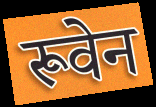
रूवेन